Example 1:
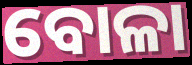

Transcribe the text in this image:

ବୋଳା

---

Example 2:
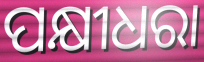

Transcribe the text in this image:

ପକ୍ଷୀଧରା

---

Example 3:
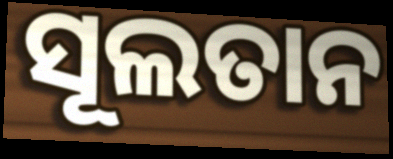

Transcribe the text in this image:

ସୂଲତାନ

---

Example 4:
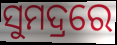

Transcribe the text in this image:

ସୁମଦ୍ରରେ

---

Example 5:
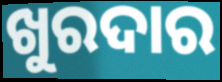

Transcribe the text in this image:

ଖୁରଦାର